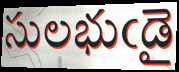
సులభుఁడై